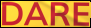
DARE